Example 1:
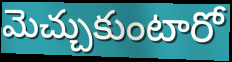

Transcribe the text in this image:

మెచ్చుకుంటారో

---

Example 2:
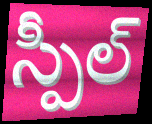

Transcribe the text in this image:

స్పీల్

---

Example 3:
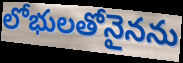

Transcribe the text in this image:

లోభులతోనైనను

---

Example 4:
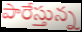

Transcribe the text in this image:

పారేస్తున్న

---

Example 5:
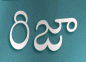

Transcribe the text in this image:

రిజా